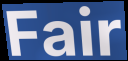
Fair